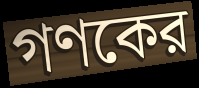
গণকের